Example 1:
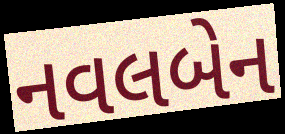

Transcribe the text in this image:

નવલબેન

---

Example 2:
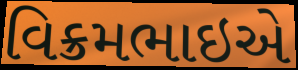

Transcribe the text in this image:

વિક્રમભાઇએ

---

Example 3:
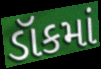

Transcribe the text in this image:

ડૉકમાં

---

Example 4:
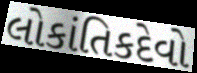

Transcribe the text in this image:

લોકાંતિકદેવો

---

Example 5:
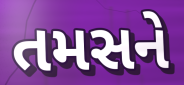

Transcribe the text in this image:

તમસને